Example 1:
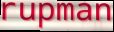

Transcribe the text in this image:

rupman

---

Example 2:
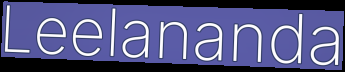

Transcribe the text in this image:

Leelananda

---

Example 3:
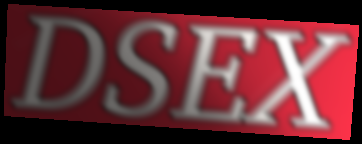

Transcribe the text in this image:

DSEX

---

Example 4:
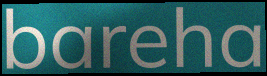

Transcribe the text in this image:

bareha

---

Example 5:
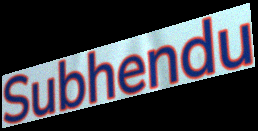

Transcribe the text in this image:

Subhendu